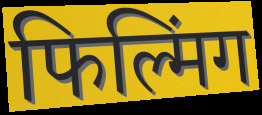
फिल्मिंग